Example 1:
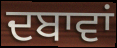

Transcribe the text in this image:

ਦਬਾਵਾਂ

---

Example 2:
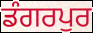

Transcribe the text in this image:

ਡੰਗਰਪੁਰ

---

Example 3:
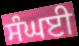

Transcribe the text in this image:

ਸੰਘਈ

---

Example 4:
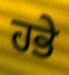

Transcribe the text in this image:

ਹਭੇ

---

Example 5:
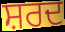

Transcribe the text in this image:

ਸ਼ਰਦ